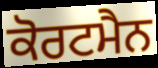
ਕੋਰਟਮੈਨ